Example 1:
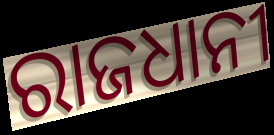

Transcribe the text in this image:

ରାଜଧାନୀ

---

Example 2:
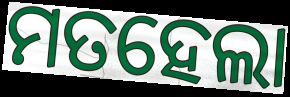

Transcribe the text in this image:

ମତହେଲା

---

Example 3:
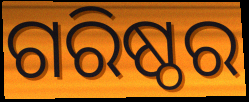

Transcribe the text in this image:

ଗରିଷ୍ଠର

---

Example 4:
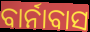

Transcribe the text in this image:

ବାର୍ନାବାସ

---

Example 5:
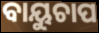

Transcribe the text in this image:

ବାୟୁଚାପ